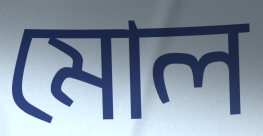
মোল